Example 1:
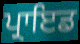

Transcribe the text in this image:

ਪ੍ਰਾਇਡ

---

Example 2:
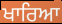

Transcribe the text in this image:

ਖਾਰਿਆ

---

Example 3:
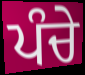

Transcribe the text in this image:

ਪੰਚੇ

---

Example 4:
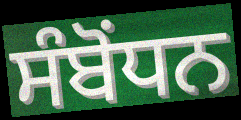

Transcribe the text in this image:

ਸੰਬੋੰਧਨ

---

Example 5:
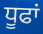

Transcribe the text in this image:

ਧੂਫਾਂ